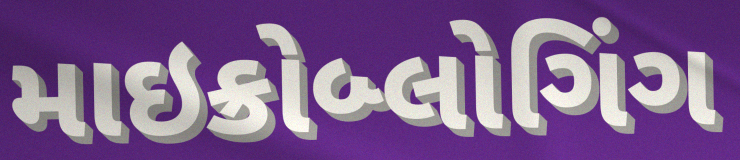
માઇક્રોબ્લોગિંગ